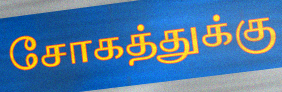
சோகத்துக்கு